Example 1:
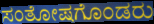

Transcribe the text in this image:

ಸಂತೋಷಗೊಂಡರು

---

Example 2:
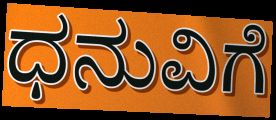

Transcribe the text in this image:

ಧನುವಿಗೆ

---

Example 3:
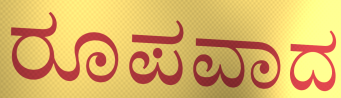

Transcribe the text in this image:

ರೂಪವಾದ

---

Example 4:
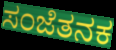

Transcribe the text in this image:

ಸಂಜೆತನಕ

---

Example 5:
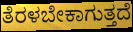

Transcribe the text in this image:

ತೆರಳಬೇಕಾಗುತ್ತದೆ